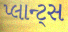
પ્લાન્ટ્સ